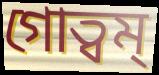
গোত্বম্